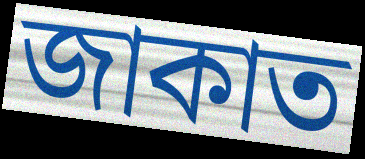
জাকাত